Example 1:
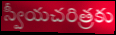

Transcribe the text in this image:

స్వీయచరిత్రకు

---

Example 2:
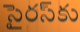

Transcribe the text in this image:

సైరస్‌కు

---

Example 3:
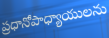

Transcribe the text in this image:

ప్రధానోపాధ్యాయులను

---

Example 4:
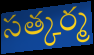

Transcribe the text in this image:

సత్కర్మ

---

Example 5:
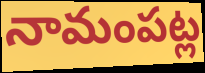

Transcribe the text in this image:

నామంపట్ల